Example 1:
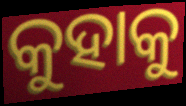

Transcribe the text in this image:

କୁହାକୁ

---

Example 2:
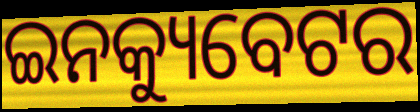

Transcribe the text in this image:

ଇନକ୍ୟୁବେଟର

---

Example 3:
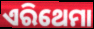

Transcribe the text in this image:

ଏରିଥେମା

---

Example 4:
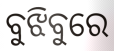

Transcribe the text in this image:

ବୁଝିବୁରେ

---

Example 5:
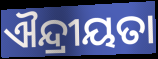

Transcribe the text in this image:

ଐନ୍ଦ୍ରୀୟତା